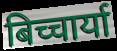
बिच्चार्या